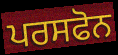
ਪਰਸਫੋਨ